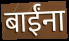
बाईंना